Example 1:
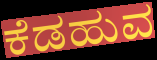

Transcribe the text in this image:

ಕೆಡಹುವ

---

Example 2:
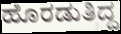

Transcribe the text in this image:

ಹೊರಡುತಿದ್ದ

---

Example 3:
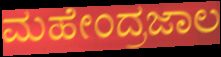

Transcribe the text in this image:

ಮಹೇಂದ್ರಜಾಲ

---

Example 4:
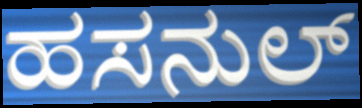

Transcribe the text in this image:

ಹಸನುಲ್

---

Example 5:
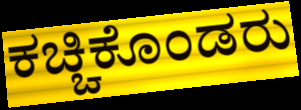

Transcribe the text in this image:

ಕಚ್ಚಿಕೊಂಡರು